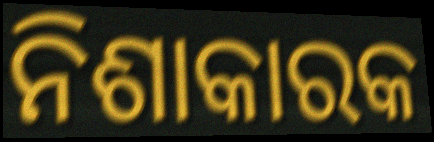
ନିଶାକାରକ